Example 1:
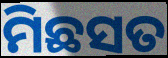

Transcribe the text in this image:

ମିଛସତ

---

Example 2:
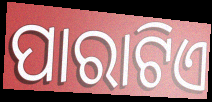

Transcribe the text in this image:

ପାରାଟିଏ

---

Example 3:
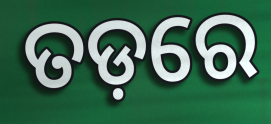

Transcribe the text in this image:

ତଡ଼ରେ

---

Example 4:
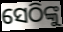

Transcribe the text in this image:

ସେଠିଙ୍କୁ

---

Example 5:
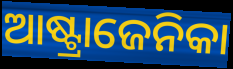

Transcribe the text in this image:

ଆଷ୍ଟ୍ରାଜେନିକା